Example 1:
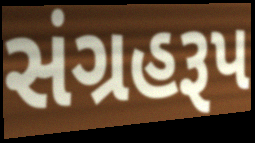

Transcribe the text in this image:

સંગ્રહરૂપ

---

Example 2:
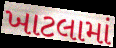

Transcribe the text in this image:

ખાટલામાં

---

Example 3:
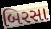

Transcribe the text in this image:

બિરસા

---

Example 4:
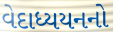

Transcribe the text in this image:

વેદાધ્યયનનો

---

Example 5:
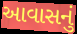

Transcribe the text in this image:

આવાસનું